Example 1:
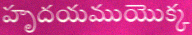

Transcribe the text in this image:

హృదయముయొక్క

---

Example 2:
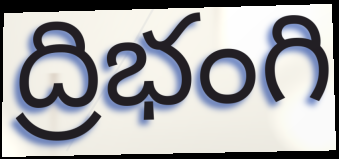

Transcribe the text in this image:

ద్రిభంగి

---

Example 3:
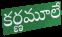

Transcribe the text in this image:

కర్ణమూలే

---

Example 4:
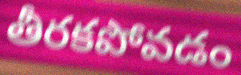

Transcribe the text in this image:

తీరకపోవడం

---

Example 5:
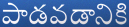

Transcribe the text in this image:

పాడవడానికి